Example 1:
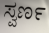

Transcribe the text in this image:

ಸ್ವರ್ಣ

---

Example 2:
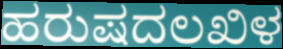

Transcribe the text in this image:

ಹರುಷದಲಖಿಳ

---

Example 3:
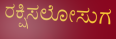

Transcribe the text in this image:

ರಕ್ಷಿಸಲೋಸುಗ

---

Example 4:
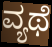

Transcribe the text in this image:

ವ್ಯಥೆ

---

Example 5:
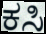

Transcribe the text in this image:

ಕಸಿ